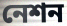
নেশন